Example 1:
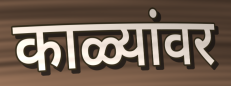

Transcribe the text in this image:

काळ्यांवर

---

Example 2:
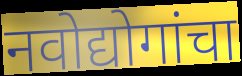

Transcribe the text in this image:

नवोद्योगांचा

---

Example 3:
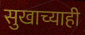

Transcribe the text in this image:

सुखाच्याही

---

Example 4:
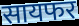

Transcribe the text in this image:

सायफर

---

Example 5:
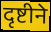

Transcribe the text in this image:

दृष्टीने